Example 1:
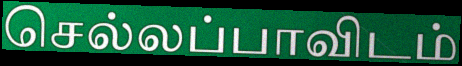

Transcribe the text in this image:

செல்லப்பாவிடம்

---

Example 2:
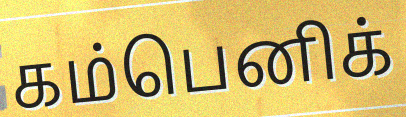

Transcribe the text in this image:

கம்பெனிக்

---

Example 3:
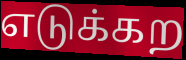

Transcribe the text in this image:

எடுக்கற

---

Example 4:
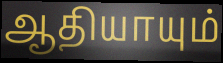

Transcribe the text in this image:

ஆதியாயும்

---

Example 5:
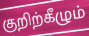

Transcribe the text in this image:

குறிற்கீழும்